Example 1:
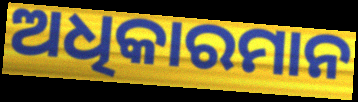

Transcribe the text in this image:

ଅଧିକାରମାନ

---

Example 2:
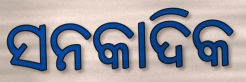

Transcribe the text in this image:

ସନକାଦିକ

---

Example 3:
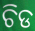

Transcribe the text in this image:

ଚିଡ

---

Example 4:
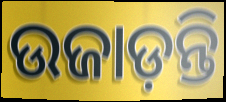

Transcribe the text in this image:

ଉଜାଡ଼ନ୍ତି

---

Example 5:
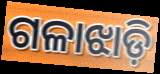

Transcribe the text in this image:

ଗଳାଝାଡ଼ି